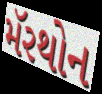
મૅરથોન